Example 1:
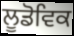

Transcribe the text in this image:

ਲੂਡੋਵਿਕ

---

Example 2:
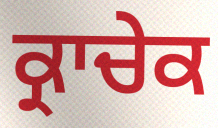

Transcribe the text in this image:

ਕ੍ਰਾਚੇਕ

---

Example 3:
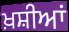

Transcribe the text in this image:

ਖ਼ਸ਼ੀਆਂ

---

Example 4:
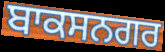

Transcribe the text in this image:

ਬਾਕਸਨਗਰ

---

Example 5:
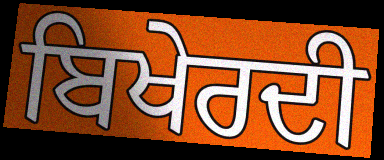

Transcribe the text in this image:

ਬਿਖੇਰਦੀ